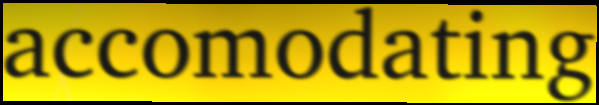
accomodating